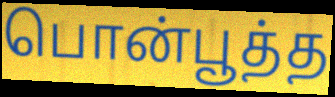
பொன்பூத்த